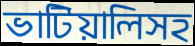
ভাটিয়ালিসহ